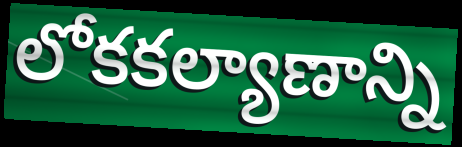
లోకకల్యాణాన్ని